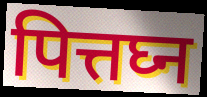
पित्तघ्न